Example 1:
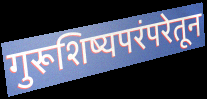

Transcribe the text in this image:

गुरूशिष्यपरंपरेतून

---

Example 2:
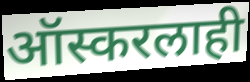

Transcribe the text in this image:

ऑस्करलाही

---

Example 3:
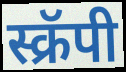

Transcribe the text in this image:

स्क्रॅपी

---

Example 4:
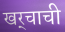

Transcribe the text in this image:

खर्चाची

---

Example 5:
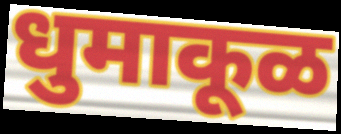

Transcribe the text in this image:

धुमाकूळ